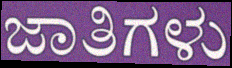
ಜಾತಿಗಳು